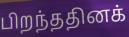
பிறந்ததினக்